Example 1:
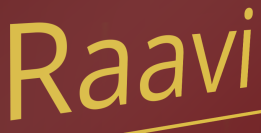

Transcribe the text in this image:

Raavi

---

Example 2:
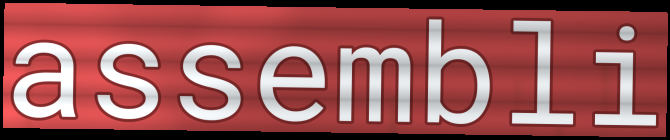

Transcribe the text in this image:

assembli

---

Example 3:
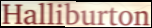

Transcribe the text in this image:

Halliburton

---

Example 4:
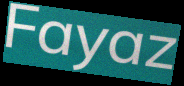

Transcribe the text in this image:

Fayaz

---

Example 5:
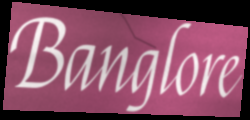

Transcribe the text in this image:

Banglore